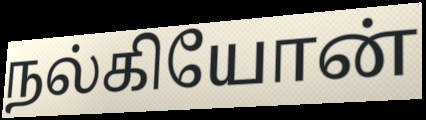
நல்கியோன்